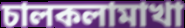
চালকলামাখা